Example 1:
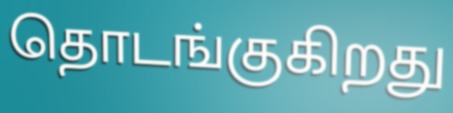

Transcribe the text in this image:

தொடங்குகிறது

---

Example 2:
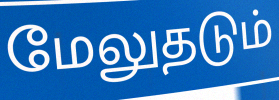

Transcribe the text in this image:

மேலுதடும்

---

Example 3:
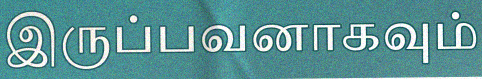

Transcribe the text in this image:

இருப்பவனாகவும்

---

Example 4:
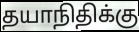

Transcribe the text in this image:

தயாநிதிக்கு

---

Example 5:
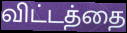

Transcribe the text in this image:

விட்டத்தை